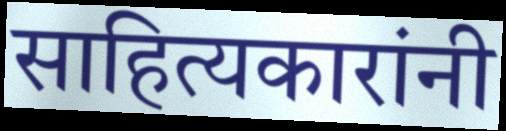
साहित्यकारांनी